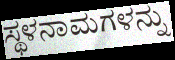
ಸ್ಥಳನಾಮಗಳನ್ನು